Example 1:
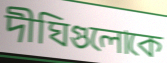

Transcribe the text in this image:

দীঘিগুলোকে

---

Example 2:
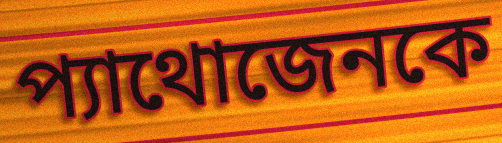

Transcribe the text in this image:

প্যাথোজেনকে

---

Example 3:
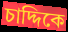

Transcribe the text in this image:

চাদ্দিকে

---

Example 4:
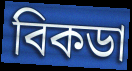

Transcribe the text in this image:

বিকডা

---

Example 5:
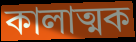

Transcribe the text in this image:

কালাত্মক